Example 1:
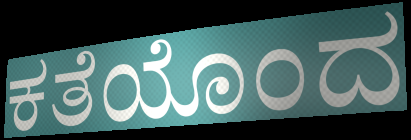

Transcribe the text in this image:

ಕತೆಯೊಂದ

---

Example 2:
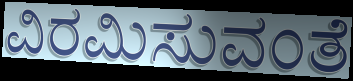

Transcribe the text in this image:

ವಿರಮಿಸುವಂತೆ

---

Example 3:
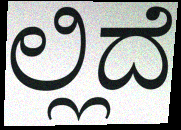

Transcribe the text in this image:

ಲ್ಲಿದೆ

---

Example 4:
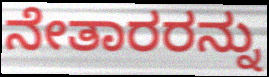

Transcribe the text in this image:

ನೇತಾರರನ್ನು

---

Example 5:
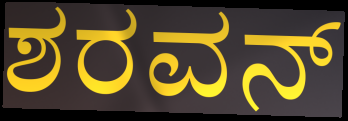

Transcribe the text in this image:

ಶರವನ್